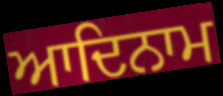
ਆਦਿਨਾਮ